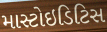
માસ્ટોઇડિટિસ